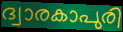
ദ്വാരകാപുരി